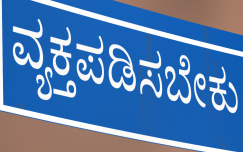
ವ್ಯಕ್ತಪಡಿಸಬೇಕು